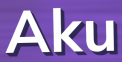
Aku